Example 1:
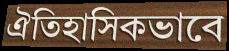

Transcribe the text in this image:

ঐতিহাসিকভাবে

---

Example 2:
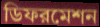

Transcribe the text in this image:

ডিফরমেশন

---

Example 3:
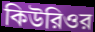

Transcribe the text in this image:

কিউরিওর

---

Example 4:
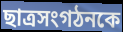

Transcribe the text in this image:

ছাত্রসংগঠনকে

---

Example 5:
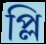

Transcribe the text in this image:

প্লি